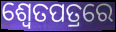
ଶ୍ୱେତପତ୍ରରେ